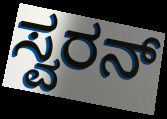
ಸ್ವರನ್